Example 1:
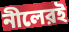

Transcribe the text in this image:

নীলেরই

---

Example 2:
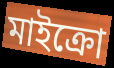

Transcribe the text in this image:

মাইক্রো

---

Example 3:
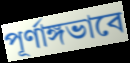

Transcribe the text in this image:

পূর্ণাঙ্গভাবে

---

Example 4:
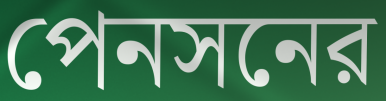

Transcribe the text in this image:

পেনসনের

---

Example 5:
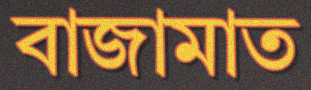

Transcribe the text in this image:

বাজামাত